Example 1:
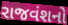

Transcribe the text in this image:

રાજવંશનો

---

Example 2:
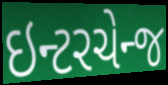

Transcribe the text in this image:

ઇન્ટરચેન્જ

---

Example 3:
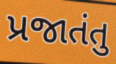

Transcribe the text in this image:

પ્રજાતંતુ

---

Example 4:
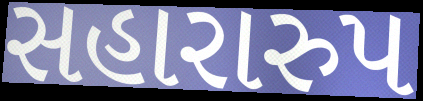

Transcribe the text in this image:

સહારારુપ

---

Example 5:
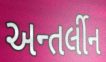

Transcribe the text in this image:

અન્તર્લીન